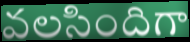
వలసిందిగా